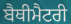
ਬੈਥੀਮੈਟਰੀ